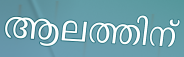
ആലത്തിന്